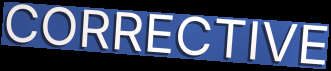
CORRECTIVE